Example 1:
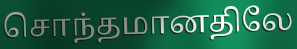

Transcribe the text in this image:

சொந்தமானதிலே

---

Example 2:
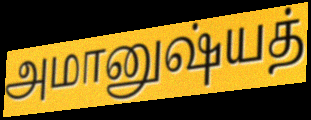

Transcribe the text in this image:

அமானுஷ்யத்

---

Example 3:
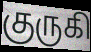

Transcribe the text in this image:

குருகி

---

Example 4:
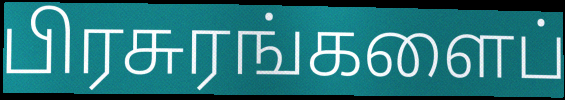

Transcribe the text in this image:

பிரசுரங்களைப்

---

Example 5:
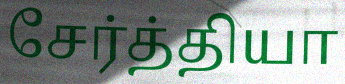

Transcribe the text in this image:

சேர்த்தியா